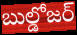
బుల్డోజర్